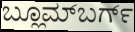
ಬ್ಲೂಮ್‌ಬರ್ಗ್